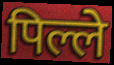
पिल्ले